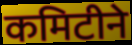
कमिटीने